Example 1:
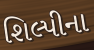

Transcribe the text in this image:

શિલ્પીના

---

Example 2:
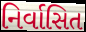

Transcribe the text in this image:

નિર્વાસિત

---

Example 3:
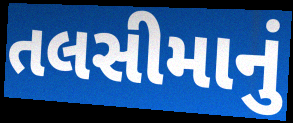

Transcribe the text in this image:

તલસીમાનું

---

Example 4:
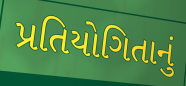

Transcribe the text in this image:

પ્રતિયોગિતાનું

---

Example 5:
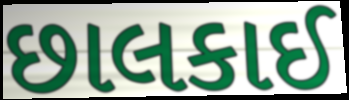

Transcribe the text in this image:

છાલકાઈ